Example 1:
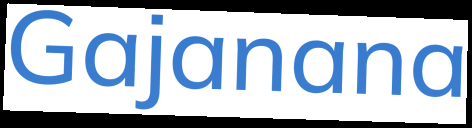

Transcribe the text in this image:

Gajanana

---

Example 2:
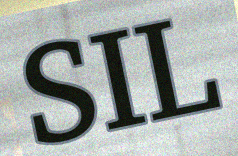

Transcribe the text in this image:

SIL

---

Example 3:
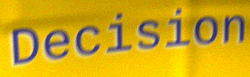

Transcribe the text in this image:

Decision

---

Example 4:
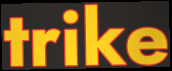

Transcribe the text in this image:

trike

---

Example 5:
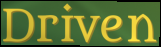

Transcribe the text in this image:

Driven